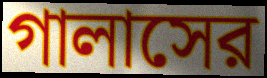
গালাসের